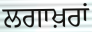
ਲਗਾਖ਼ਰਾਂ